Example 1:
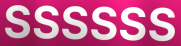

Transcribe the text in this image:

SSSSSS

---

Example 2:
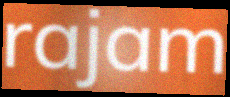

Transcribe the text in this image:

rajam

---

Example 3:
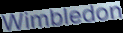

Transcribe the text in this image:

Wimbledon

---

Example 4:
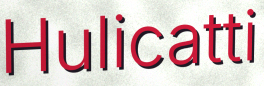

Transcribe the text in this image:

Hulicatti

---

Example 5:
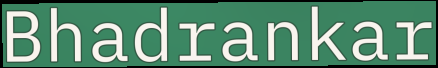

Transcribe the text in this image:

Bhadrankar